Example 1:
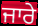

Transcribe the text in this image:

ਜਾਰੇ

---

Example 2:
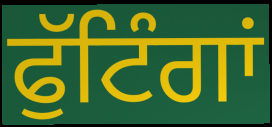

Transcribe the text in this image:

ਫੁੱਟਿੰਗਾਂ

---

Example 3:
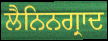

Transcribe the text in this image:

ਲੈਨਿਨਗ੍ਰਾਦ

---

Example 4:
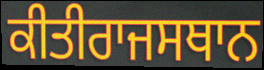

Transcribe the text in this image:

ਕੀਤੀਰਾਜਸਥਾਨ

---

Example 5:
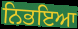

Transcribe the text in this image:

ਨਿਭਇਆ